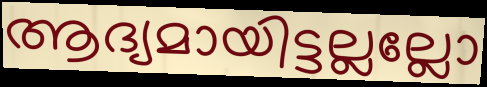
ആദ്യമായിട്ടല്ലല്ലോ